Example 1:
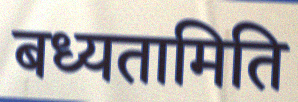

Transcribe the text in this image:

बध्यतामिति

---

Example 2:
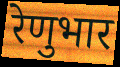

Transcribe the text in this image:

रेणुभार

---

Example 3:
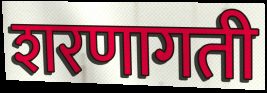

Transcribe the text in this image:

शरणागती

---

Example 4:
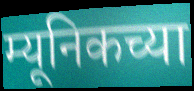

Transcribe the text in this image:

म्यूनिकच्या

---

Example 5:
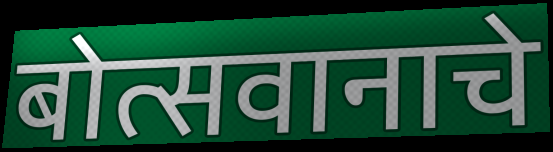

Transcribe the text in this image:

बोत्सवानाचे